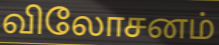
விலோசனம்